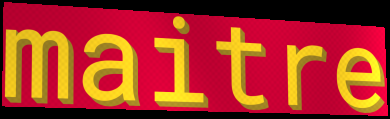
maitre